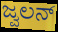
ಜ್ವಲನ್